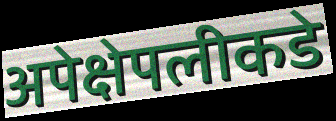
अपेक्षेपलीकडे